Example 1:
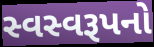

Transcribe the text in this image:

સ્વસ્વરૂપનો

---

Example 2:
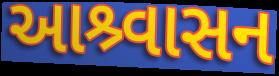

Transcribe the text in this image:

આશ્ર્વાસન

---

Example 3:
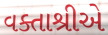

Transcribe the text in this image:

વક્તાશ્રીએ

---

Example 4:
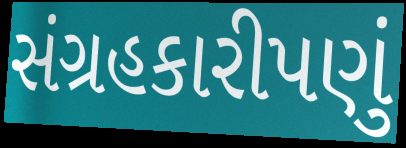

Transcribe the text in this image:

સંગ્રહકારીપણું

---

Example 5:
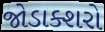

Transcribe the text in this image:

જોડાક્શરો